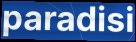
paradisi